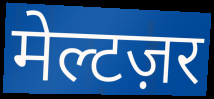
मेल्टज़र